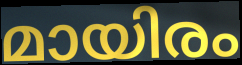
മായിരം